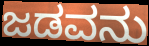
ಜಡವನು